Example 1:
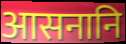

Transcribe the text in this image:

आसनानि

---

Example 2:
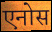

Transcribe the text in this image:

एनोस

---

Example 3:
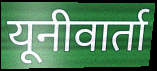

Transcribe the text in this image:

यूनीवार्ता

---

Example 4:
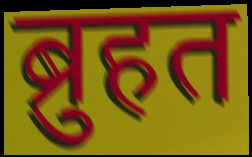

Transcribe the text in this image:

ब्रुहत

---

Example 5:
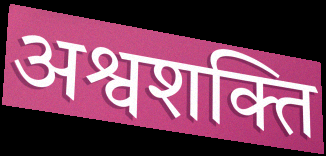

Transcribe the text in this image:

अश्वशक्ति